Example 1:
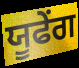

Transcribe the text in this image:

ਯੂਫੇਂਗ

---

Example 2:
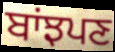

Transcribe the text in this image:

ਬਾਂਝਪਣ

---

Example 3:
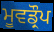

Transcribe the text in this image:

ਮੂਵਡ੍ਰੌਪ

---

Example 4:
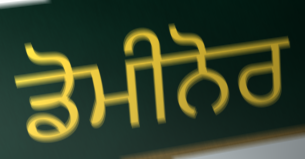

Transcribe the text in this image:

ਡੋਮੀਨੋਰ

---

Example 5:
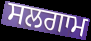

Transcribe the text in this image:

ਸਲਗਾਮ